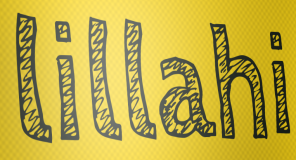
lillahi